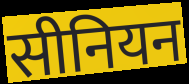
सीनियन